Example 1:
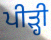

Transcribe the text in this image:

ਪੀੜ੍ਹੀ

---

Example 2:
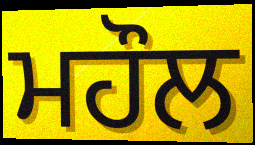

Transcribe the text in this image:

ਮਹੌਲ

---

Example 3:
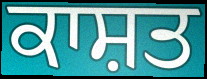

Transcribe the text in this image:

ਕਾਸ਼ਤ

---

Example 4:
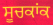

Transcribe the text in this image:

ਸੂਚਕਾਂਕ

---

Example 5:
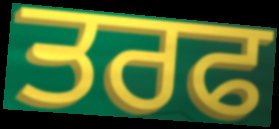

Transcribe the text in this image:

ਤਰਫ